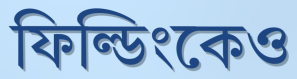
ফিল্ডিংকেও